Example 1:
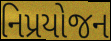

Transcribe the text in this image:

નિપ્રયોજન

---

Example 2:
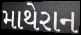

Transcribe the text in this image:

માથેરાન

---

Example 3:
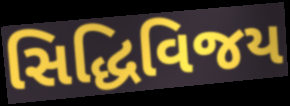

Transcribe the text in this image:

સિદ્ધિવિજય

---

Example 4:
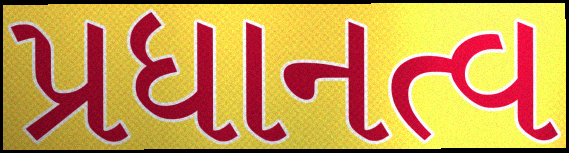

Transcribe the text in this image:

પ્રધાનત્વ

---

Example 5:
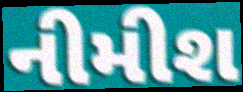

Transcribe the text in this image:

નીમીશ